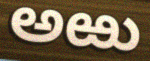
ಅಱು